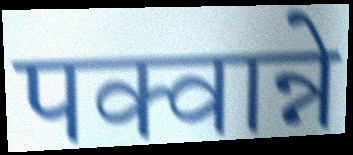
पक्वान्ने